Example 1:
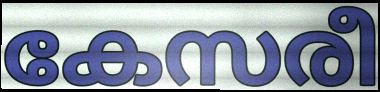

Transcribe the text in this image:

കേസരീ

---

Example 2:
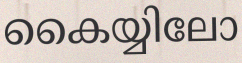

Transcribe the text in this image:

കൈയ്യിലോ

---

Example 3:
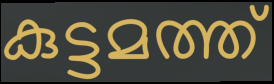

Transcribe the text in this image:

കുട്ടമത്ത്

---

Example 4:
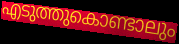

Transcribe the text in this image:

എടുത്തുകൊണ്ടാലും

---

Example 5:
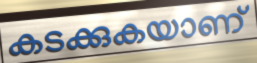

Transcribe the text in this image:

കടക്കുകയാണ്